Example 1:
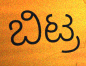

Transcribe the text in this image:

ಬಿಟ್ರ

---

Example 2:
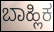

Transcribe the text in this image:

ಬಾಹ್ಲಿಕ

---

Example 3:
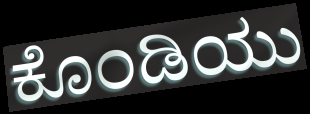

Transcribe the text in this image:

ಕೊಂಡಿಯು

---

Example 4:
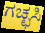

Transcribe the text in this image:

ಗಚ್ಛಸಿ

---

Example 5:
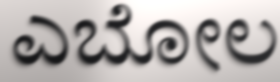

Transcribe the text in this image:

ಎಬೋಲ